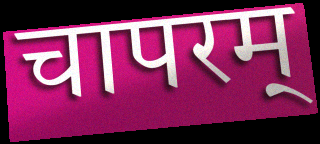
चापरम्